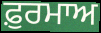
ਫ਼ੁਰਮਾਅ